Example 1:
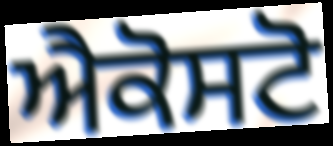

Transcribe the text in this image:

ਐਕੋਸਟੋ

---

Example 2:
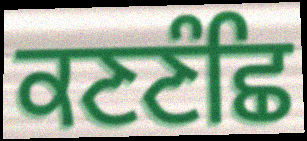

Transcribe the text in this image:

ਕਣਣੰਛਿ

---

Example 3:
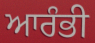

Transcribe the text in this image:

ਆਰੰਭੀ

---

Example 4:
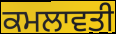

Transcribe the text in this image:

ਕਮਲਾਵਤੀ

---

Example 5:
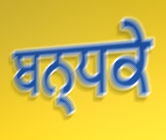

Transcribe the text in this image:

ਬਨ੍ਧਕੇ